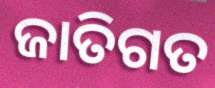
ଜାତିଗତ